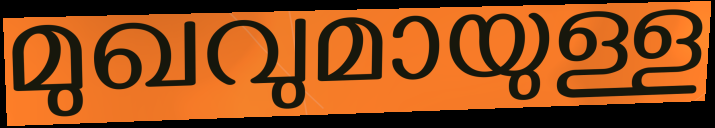
മുഖവുമായുള്ള